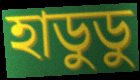
হাডুডু